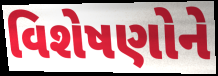
વિશેષણોને